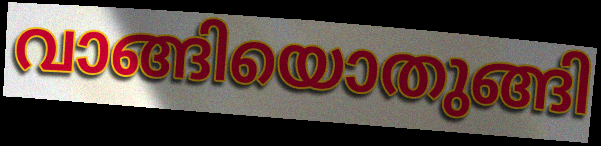
വാങ്ങിയൊതുങ്ങി